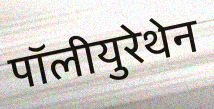
पॉलीयुरेथेन